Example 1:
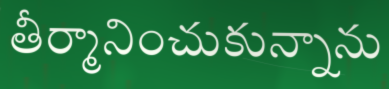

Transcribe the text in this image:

తీర్మానించుకున్నాను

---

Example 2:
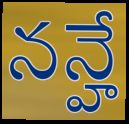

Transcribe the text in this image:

నన్హే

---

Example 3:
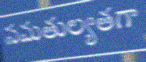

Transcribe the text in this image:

సమతుల్యతగా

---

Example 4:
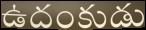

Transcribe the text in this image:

ఉదంకుడు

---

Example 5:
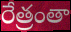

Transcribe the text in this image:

రేత్రంతా